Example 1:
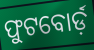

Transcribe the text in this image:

ଫୁଟବୋର୍ଡ଼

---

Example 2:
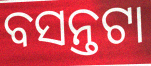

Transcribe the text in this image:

ବସନ୍ତଟା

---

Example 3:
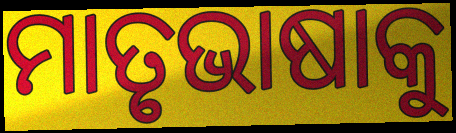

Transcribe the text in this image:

ମାତୃଭାଷାକୁ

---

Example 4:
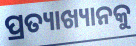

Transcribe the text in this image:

ପ୍ରତ୍ୟାଖ୍ୟାନକୁ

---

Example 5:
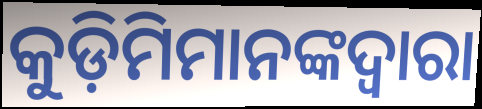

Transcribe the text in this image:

କୁଡ଼ିମିମାନଙ୍କଦ୍ୱାରା